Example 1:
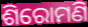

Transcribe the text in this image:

ଶିରୋମଣି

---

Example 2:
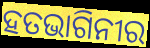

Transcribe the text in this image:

ହତଭାଗିନୀର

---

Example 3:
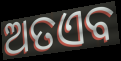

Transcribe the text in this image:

ଅତଏବ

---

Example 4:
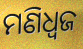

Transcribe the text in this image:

ମଣିଧ୍ୱଜ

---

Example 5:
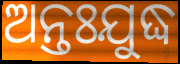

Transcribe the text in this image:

ଅନ୍ତଃଯୁଦ୍ଧ